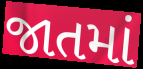
જાતમાં